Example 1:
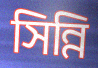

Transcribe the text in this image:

সিন্নি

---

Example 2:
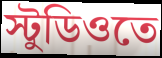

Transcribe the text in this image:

স্টুডিওতে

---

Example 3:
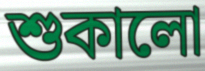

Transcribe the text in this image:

শুকালো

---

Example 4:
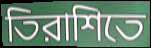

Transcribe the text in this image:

তিরাশিতে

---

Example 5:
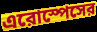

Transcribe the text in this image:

এরোস্পেসের